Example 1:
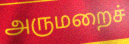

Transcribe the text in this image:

அருமறைச்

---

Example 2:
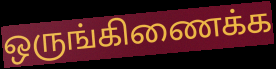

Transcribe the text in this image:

ஒருங்கிணைக்க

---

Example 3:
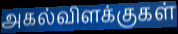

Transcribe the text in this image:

அகல்விளக்குகள்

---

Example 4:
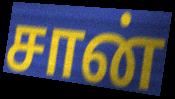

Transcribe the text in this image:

சான்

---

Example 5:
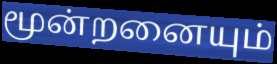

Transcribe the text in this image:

மூன்றனையும்